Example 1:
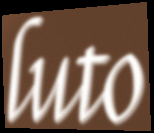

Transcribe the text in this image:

luto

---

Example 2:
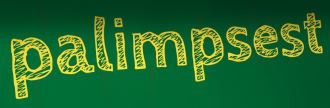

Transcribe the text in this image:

palimpsest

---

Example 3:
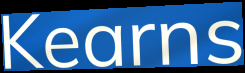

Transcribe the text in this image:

Kearns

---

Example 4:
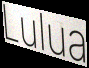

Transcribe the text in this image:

Lulua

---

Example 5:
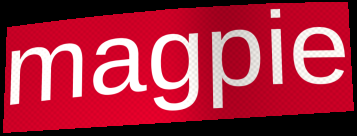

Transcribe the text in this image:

magpie